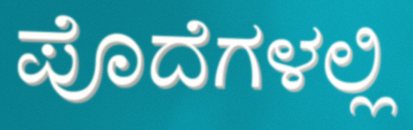
ಪೊದೆಗಳಲ್ಲಿ